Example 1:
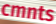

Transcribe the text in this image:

cmnts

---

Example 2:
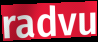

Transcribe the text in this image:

radvu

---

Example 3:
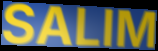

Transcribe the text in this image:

SALIM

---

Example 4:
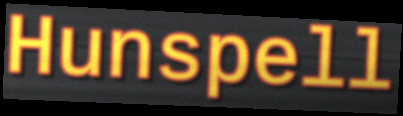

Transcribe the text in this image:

Hunspell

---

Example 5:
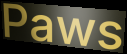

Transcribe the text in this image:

Paws